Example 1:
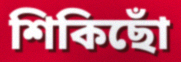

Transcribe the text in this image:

শিকিছোঁ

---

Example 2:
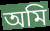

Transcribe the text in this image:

অমি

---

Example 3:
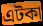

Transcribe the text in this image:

এটকা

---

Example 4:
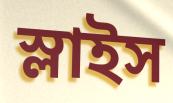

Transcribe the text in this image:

স্লাইস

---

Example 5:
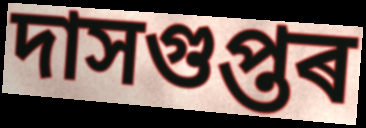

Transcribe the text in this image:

দাসগুপ্তৰ